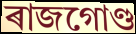
ৰাজগোণ্ড